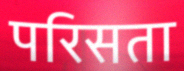
परिसता